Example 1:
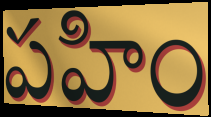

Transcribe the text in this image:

పహిం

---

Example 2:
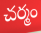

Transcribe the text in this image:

చర్మం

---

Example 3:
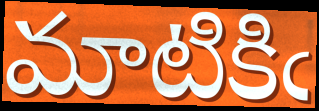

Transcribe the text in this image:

మాటికిఁ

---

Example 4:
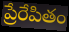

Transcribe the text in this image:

ప్రేరేపితం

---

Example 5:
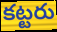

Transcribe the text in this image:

కట్టరు